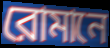
রোমানে